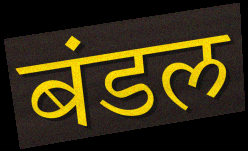
बंडल